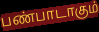
பண்பாடாகும்